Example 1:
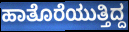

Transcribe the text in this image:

ಹಾತೊರೆಯುತ್ತಿದ್ದ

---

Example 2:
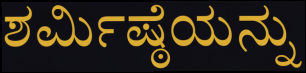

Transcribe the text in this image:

ಶರ್ಮಿಷ್ಠೆಯನ್ನು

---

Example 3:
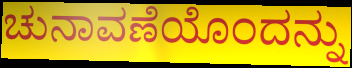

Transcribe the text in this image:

ಚುನಾವಣೆಯೊಂದನ್ನು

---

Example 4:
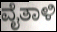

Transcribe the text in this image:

ವೈತಾಳಿ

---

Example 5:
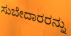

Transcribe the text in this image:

ಸುಬೇದಾರರನ್ನು